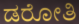
ಡರೋತಿ